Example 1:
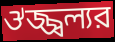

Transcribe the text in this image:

ঔজ্জ্বল্যর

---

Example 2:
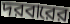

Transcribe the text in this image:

দরবারের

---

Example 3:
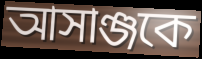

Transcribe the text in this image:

আসাঞ্জকে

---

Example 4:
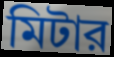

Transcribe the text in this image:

মিটার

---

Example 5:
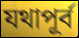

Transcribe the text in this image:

যথাপূর্ব